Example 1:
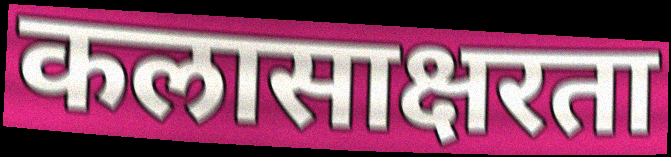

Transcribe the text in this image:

कलासाक्षरता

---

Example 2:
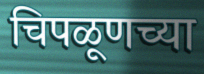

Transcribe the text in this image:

चिपळूणच्या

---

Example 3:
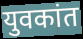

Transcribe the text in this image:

युवकांत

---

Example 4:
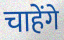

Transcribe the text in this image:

चाहेंगे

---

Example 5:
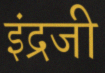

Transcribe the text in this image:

इंद्रजी